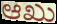
ಆಖು